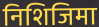
निशिजिमा